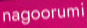
nagoorumi